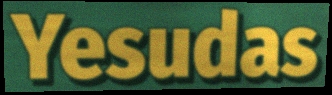
Yesudas